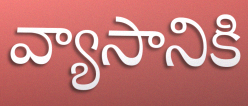
వ్యాసానికి